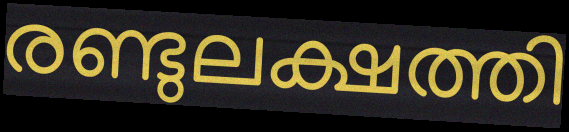
രണ്ടുലക്ഷത്തി